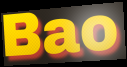
Bao